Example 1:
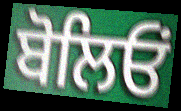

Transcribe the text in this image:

ਬੋਲਿਓਂ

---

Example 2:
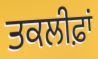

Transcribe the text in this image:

ਤਕਲੀਫ਼ਾਂ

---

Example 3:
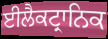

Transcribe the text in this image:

ਈਲੈਕਟ੍ਰਾਨਿਕ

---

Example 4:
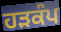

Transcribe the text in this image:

ਹਡ਼ਕੰਪ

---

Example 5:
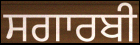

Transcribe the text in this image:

ਸਗਾਰਬੀ